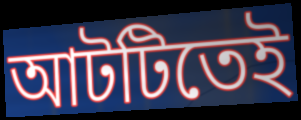
আটটিতেই